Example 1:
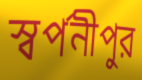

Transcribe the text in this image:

স্বর্পনীপুর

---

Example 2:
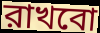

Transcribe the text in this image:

রাখবো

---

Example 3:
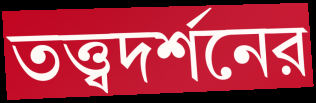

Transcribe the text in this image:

তত্ত্বদর্শনের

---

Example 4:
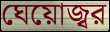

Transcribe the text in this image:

ঘেয়োজ্বর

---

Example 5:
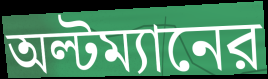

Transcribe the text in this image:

অল্টম্যানের